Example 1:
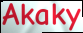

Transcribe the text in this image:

Akaky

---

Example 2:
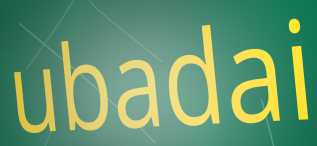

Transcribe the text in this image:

ubadai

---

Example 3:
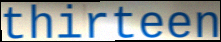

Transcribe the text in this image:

thirteen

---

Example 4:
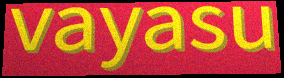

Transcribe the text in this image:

vayasu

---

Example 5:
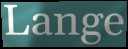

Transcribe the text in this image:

Lange